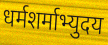
धर्मशर्माभ्युदय